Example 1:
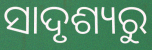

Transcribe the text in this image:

ସାଦୃଶ୍ୟରୁ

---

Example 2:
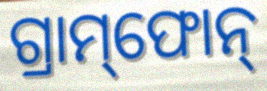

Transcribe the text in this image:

ଗ୍ରାମ୍‌ଫୋନ୍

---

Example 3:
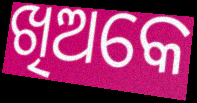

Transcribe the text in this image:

ଖିଅକେ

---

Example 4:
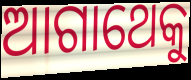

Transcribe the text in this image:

ଆଗାଥେକୁ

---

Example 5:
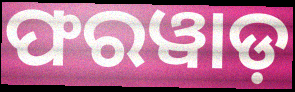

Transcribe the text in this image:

ଫରୱାଡ଼